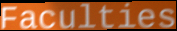
Faculties